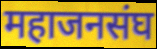
महाजनसंघ